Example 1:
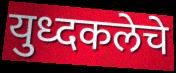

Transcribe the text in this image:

युध्दकलेचे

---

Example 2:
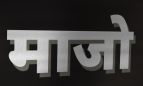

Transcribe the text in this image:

माजो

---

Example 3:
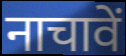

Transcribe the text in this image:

नाचावें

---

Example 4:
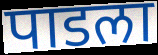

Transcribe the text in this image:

पाडला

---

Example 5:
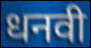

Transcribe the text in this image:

धनवी